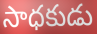
సాధకుడు